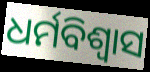
ଧର୍ମବିଶ୍ୱାସ